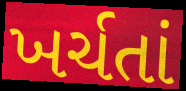
ખર્ચતાં